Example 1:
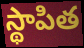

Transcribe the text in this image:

స్థాపిత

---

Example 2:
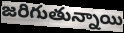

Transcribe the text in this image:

జరిగుతున్నాయి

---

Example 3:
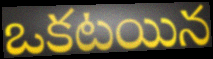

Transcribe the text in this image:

ఒకటయిన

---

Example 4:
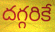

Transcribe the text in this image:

దగ్గరికే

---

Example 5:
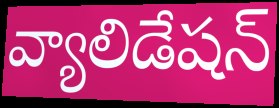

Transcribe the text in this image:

వ్యాలిడేషన్